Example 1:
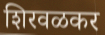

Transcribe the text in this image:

शिरवळकर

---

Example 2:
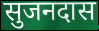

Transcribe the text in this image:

सुजनदास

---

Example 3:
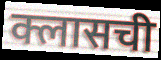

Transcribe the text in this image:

क्लासची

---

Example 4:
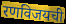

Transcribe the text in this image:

रणविजयची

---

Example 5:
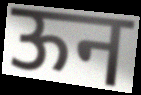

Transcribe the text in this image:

ऊन